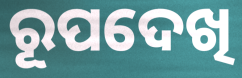
ରୂପଦେଖି